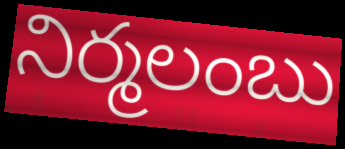
నిర్మలంబు